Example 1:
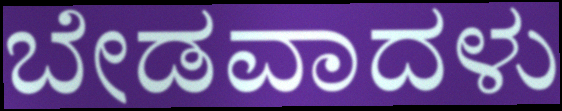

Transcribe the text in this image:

ಬೇಡವಾದಳು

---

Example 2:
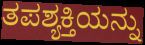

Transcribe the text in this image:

ತಪಶ್ಯಕ್ತಿಯನ್ನು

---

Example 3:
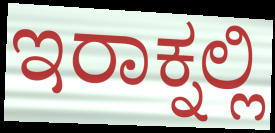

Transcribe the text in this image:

ಇರಾಕ್ನಲ್ಲಿ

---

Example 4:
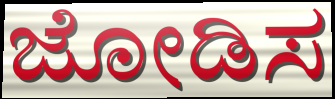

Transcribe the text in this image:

ಜೋಡಿಸ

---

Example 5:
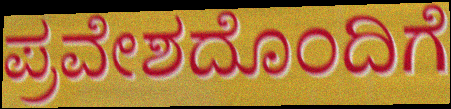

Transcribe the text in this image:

ಪ್ರವೇಶದೊಂದಿಗೆ